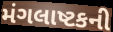
મંગલાષ્ટકની